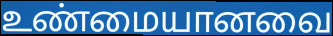
உண்மையானவை